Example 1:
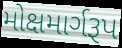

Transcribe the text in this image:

મોક્ષમાર્ગરૂપ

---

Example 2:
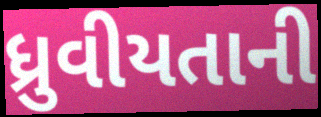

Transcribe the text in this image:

ધ્રુવીયતાની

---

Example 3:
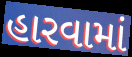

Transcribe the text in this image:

હારવામાં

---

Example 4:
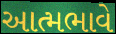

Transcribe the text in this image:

આત્મભાવે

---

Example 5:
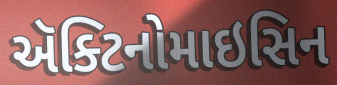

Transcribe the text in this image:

ઍક્ટિનોમાઇસિન